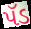
પૅડ